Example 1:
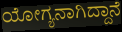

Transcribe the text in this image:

ಯೋಗ್ಯನಾಗಿದ್ದಾನೆ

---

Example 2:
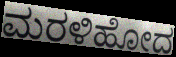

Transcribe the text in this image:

ಮರಳಿಹೋದ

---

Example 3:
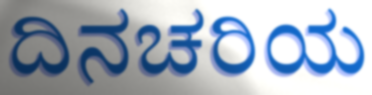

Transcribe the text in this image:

ದಿನಚರಿಯ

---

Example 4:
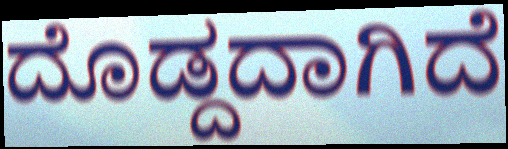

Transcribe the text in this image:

ದೊಡ್ದದಾಗಿದೆ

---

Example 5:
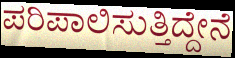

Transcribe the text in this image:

ಪರಿಪಾಲಿಸುತ್ತಿದ್ದೇನೆ